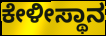
ಕೇಳೀಸ್ಥಾನ